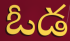
ఓడ